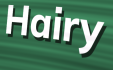
Hairy